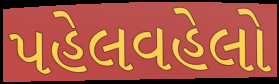
પહેલવહેલો